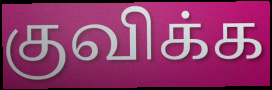
குவிக்க